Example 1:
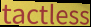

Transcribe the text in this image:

tactless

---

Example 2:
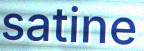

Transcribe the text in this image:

satine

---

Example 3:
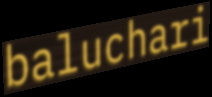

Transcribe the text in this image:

baluchari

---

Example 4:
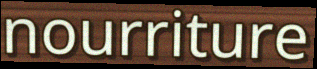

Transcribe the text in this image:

nourriture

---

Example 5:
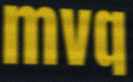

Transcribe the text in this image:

mvq